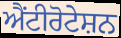
ਐਂਟੀਰੋਟੇਸ਼ਨ